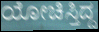
ಯೋಚಿಸ್ತಿದ್ದ